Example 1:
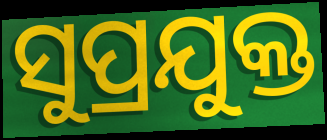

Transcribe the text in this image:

ସୁପ୍ରଯୁକ୍ତ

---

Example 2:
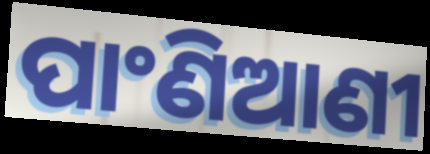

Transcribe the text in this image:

ପାଂଣିଆଣୀ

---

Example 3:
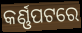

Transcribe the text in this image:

କର୍ଣ୍ଣପଟରେ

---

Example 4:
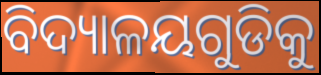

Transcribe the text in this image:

ବିଦ୍ୟାଳୟଗୁଡିକୁ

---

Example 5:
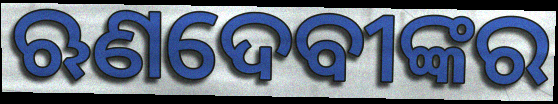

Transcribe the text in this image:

ଋଣଦେବୀଙ୍କର